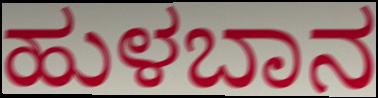
ಹುಳಬಾನ